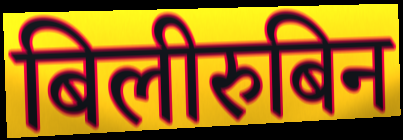
बिलीरुबिन